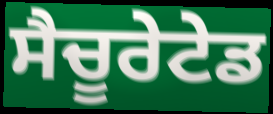
ਸੈਚੂਰੇਟੇਡ